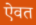
ऐवत